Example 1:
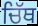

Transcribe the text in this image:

ਚਿੱਥ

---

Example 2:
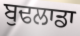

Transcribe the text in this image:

ਬੁਢਲਾਡਾ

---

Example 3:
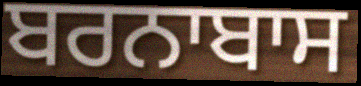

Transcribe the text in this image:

ਬਰਨਾਬਾਸ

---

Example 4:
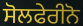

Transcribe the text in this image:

ਸੋਲਫੇਰੀਨੋ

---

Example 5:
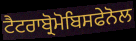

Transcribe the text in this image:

ਟੈਟਰਾਬ੍ਰੋਮੋਬਿਸਫੇਨੋਲ